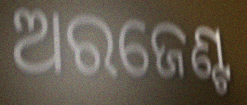
ଅରଜେଣ୍ଟ